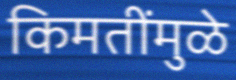
किमतींमुळे